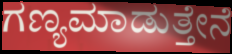
ಗಣ್ಯಮಾಡುತ್ತೇನೆ